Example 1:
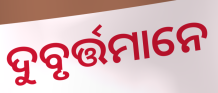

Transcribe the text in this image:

ଦୁବୃର୍ତ୍ତମାନେ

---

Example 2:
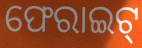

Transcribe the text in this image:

ଫେରାଇଟ୍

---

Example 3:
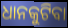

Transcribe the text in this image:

ଧାନକୁଟିବା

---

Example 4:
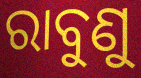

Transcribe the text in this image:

ରାବୁଣୁ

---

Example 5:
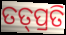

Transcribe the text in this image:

ତତ୍‌ପ୍ରତି